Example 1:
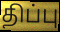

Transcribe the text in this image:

திப்பு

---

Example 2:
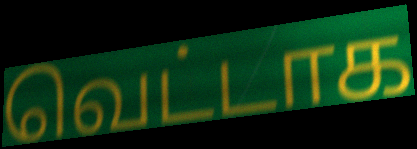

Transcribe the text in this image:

வெட்டாக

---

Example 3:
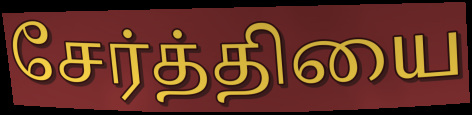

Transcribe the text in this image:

சேர்த்தியை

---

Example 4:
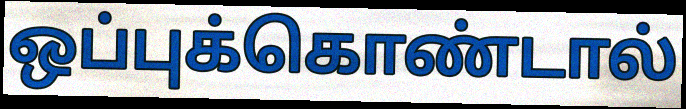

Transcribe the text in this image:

ஒப்புக்கொண்டால்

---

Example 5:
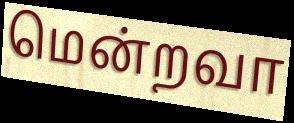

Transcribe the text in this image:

மென்றவா